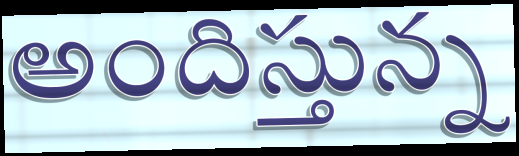
అందిస్తున్న